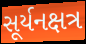
સૂર્યનક્ષત્ર